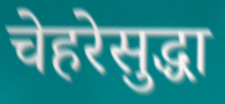
चेहरेसुद्धा